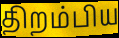
திறம்பிய